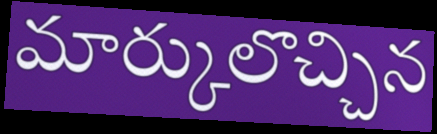
మార్కులొచ్చిన